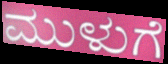
ಮುಳುಗೆ